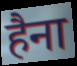
हैना